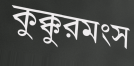
কুক্কুরমংস